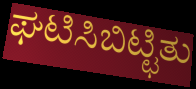
ಘಟಿಸಿಬಿಟ್ಟಿತು